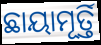
ଛାୟାମୂର୍ତ୍ତି